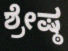
ಶ್ರೇಷ್ಠ